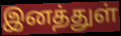
இனத்துள்